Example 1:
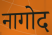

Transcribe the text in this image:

नागोद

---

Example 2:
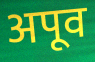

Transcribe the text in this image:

अपूव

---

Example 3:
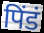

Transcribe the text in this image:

पिंडं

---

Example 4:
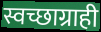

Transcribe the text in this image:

स्वच्छाग्राही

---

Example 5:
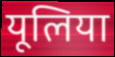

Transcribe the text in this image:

यूलिया